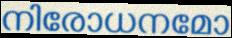
നിരോധനമോ